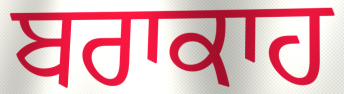
ਬਰਾਕਾਹ